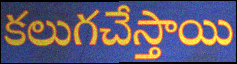
కలుగచేస్తాయి